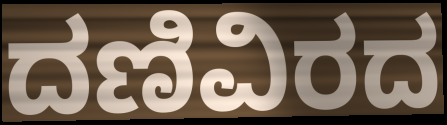
ದಣಿವಿರದ